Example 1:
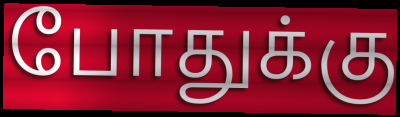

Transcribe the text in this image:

போதுக்கு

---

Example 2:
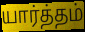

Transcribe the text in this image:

யார்த்தம்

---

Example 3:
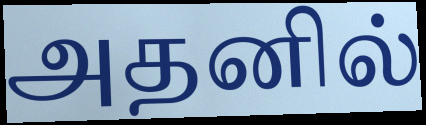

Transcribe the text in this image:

அதனில்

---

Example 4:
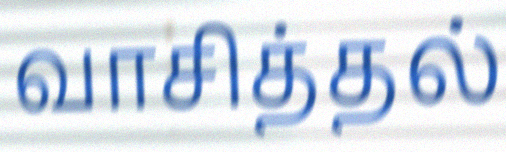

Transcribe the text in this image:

வாசித்தல்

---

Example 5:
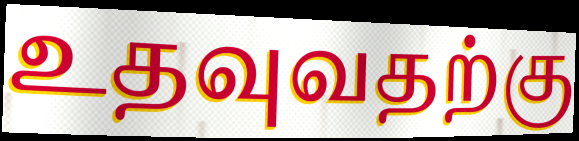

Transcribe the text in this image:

உதவுவதற்கு